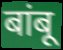
बांबू